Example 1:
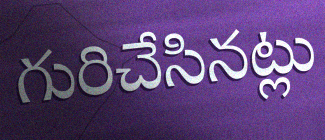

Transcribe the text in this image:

గురిచేసినట్లు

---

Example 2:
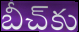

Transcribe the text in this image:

బీచ్‌కు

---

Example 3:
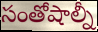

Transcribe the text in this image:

సంతోషాల్నీ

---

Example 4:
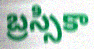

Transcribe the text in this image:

బ్రస్సికా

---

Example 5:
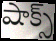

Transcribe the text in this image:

షాక్స్